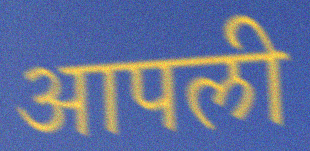
आपली